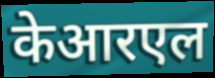
केआरएल